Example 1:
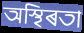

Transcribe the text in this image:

অস্থিৰতা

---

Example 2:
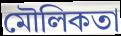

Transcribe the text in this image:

মৌলিকতা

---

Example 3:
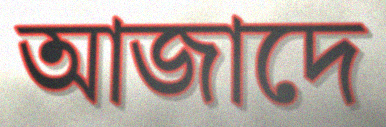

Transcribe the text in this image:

আজাদে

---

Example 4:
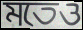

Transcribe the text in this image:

মতেও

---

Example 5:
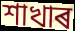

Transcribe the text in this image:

শাখাৰ